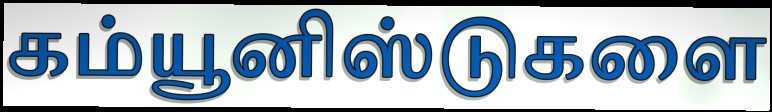
கம்யூனிஸ்டுகளை